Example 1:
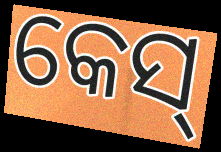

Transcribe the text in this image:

କେସ୍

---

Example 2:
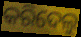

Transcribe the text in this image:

କରିଦେଲୁ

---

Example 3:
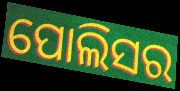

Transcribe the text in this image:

ପୋଲିସର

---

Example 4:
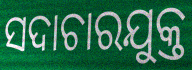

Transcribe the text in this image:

ସଦାଚାରଯୁକ୍ତ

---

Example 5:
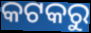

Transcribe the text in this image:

କଟକରୁ